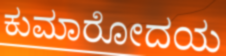
ಕುಮಾರೋದಯ